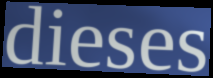
dieses